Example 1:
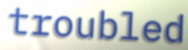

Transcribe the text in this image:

troubled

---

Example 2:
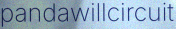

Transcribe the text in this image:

pandawillcircuit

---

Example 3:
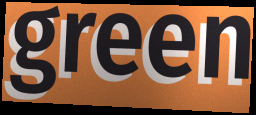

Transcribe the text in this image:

green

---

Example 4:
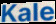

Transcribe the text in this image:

Kale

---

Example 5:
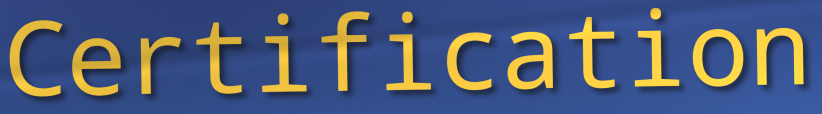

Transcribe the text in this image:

Certification